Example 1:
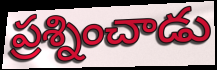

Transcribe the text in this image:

ప్రశ్నించాడు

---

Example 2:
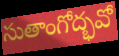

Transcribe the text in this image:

సుతాంగోద్భవో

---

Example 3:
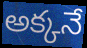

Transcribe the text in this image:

అక్కనే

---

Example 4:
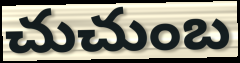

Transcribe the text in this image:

చుచుంబ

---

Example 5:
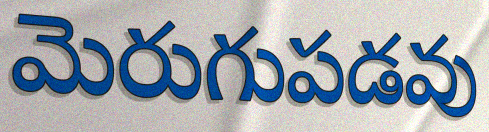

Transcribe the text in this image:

మెరుగుపడవు